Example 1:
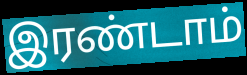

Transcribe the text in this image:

இரண்டாம்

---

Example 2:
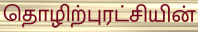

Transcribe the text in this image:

தொழிற்புரட்சியின்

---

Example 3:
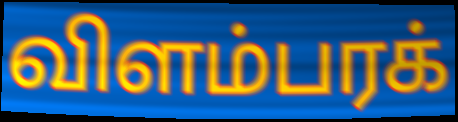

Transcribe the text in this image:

விளம்பரக்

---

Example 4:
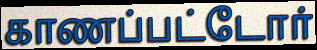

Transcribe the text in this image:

காணப்பட்டோர்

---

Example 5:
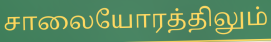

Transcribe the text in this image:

சாலையோரத்திலும்